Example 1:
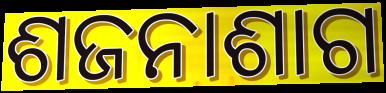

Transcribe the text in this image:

ଶଜନାଶାଗ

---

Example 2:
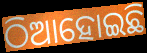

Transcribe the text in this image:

ଠିଆହୋଇଛି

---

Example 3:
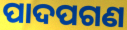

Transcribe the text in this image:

ପାଦପଗଣ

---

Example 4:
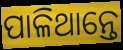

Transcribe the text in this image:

ପାଳିଥାନ୍ତେ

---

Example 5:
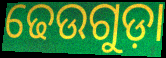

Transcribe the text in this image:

ଢେଉଗୁଡ଼ା